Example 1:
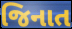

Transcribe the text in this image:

જિનાત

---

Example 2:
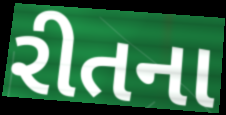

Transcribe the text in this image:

રીતના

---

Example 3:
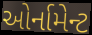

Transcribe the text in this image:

ઓર્નામેન્ટ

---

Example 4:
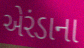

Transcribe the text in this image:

એરંડાના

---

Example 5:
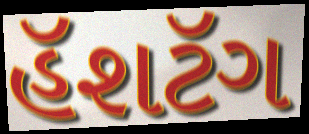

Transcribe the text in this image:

હૅશટૅગ